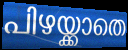
പിഴയ്ക്കാതെ